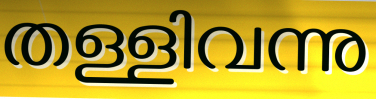
തള്ളിവന്നു